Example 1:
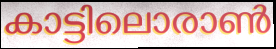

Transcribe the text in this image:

കാട്ടിലൊരാൺ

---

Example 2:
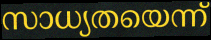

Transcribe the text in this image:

സാധ്യതയെന്ന്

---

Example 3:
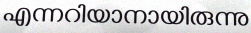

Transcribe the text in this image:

എന്നറിയാനായിരുന്നു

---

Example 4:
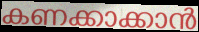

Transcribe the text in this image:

കണക്കാക്കാൻ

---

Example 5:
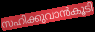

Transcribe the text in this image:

സഹിക്കുവാൻകൂടി